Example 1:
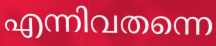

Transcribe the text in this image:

എന്നിവതന്നെ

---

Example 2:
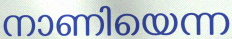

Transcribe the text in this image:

നാണിയെന്ന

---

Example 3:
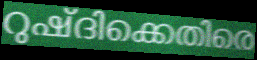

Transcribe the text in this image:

റുഷ്ദിക്കെതിരെ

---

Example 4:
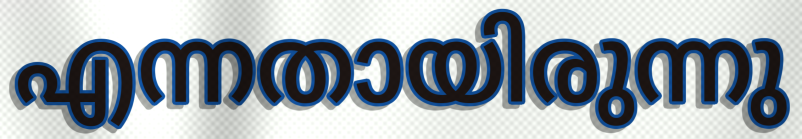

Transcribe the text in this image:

എന്നതായിരുന്നു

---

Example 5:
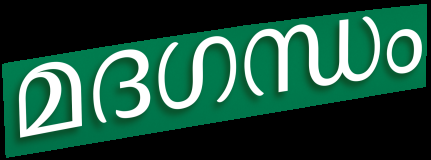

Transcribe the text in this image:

മദഗന്ധം